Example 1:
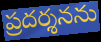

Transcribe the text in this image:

ప్రదర్శనను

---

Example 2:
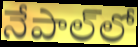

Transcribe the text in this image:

నేపాల్‌లో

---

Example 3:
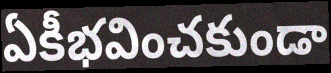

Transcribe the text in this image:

ఏకీభవించకుండా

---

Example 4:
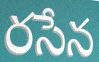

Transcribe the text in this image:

రసేన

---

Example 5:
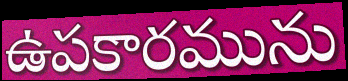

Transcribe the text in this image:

ఉపకారమును